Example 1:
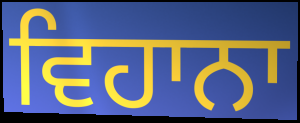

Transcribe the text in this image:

ਵਿਹਾਨਾ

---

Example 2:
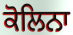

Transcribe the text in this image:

ਕੋਲਿਨਾ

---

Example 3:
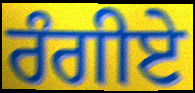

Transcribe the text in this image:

ਰੰਗੀਏ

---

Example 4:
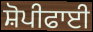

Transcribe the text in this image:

ਸ਼ੋਪੀਫਾਈ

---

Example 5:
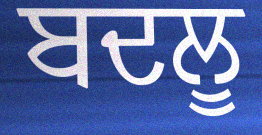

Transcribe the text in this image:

ਬਦਲੂ